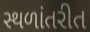
સ્થળાંતરીત